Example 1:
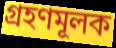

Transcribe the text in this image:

গ্রহণমূলক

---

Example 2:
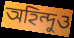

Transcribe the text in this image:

অহিন্দুও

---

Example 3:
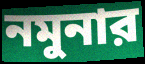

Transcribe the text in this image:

নমুনার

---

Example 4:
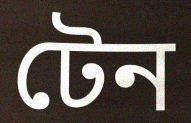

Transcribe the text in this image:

টেন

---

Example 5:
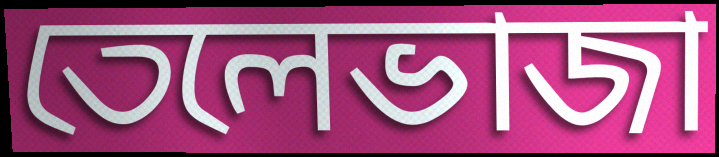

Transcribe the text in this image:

তেলেভাজা